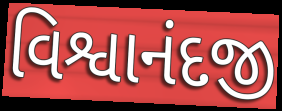
વિશ્વાનંદજી